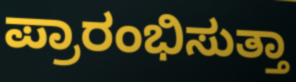
ಪ್ರಾರಂಭಿಸುತ್ತಾ